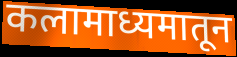
कलामाध्यमातून